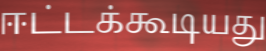
ஈட்டக்கூடியது